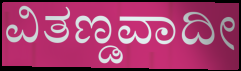
ವಿತಣ್ಡವಾದೀ